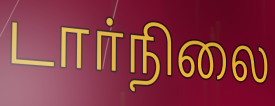
டார்நிலை